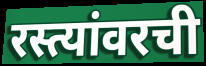
रस्त्यांवरची